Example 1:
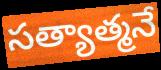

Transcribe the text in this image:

సత్యాత్మనే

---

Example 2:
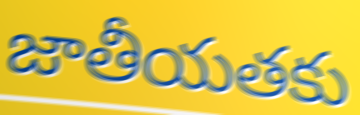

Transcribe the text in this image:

జాతీయతకు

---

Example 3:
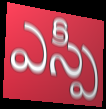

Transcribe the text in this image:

ఎస్పీ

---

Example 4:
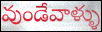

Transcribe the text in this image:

వుండేవాళ్ళు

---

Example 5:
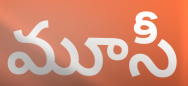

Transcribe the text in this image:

మూసీ